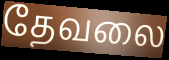
தேவலை